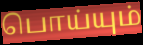
பொய்யும்